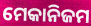
ମେକାନିଜମ